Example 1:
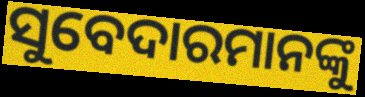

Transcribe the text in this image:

ସୁବେଦାରମାନଙ୍କୁ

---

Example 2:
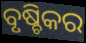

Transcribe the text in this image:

ବୃଷ୍ଚିକର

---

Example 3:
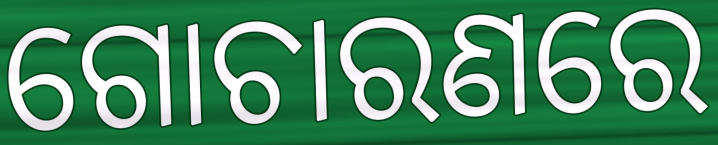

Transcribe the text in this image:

ଗୋଚାରଣରେ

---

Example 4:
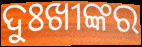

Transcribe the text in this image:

ଦୁଃଖୀଙ୍କର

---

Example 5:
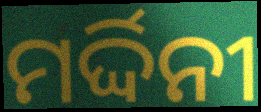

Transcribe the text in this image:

ମର୍ଦ୍ଦିନୀ